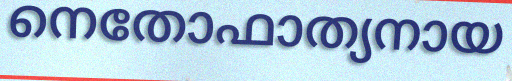
നെതോഫാത്യനായ